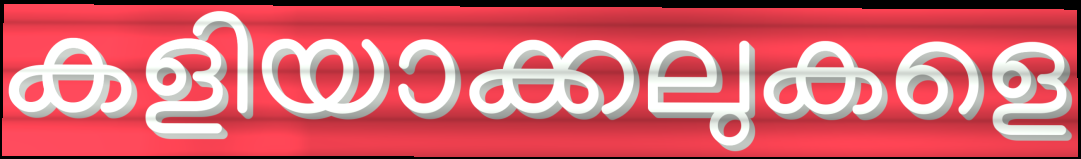
കളിയാക്കലുകളെ